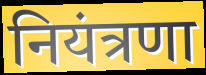
नियंत्रणा